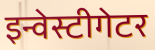
इन्वेस्टीगेटर